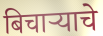
बिचाऱ्याचे